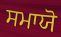
ਸਮਾਯੋ